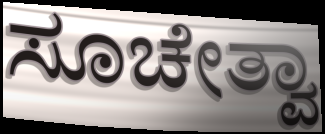
ಸೂಚೇತ್ವಾ